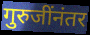
गुरुजींनंतर